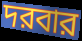
দরবার